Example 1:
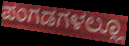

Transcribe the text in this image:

ಪಂಗಡಗಳಲ್ಲೂ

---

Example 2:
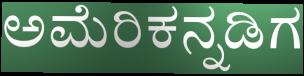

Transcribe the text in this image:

ಅಮೆರಿಕನ್ನಡಿಗ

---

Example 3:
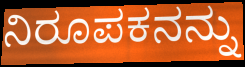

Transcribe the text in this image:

ನಿರೂಪಕನನ್ನು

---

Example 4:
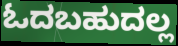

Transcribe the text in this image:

ಓದಬಹುದಲ್ಲ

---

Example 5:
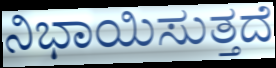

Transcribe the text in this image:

ನಿಭಾಯಿಸುತ್ತದೆ